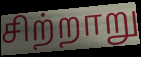
சிற்றாறு